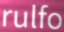
rulfo